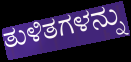
ತುಳಿತಗಳನ್ನು